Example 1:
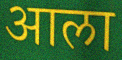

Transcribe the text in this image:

आला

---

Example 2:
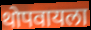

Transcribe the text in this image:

थोपवायला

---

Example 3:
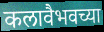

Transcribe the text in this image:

कलावैभवच्या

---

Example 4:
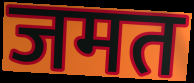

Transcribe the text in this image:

जमत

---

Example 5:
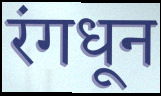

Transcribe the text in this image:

रंगधून